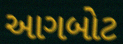
આગબોટ